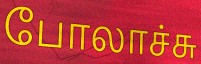
போலாச்சு